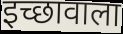
इच्छावाला